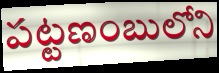
పట్టణంబులోని